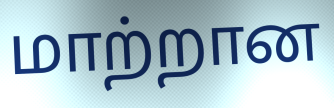
மாற்றான